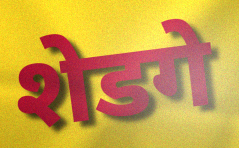
शेडगे